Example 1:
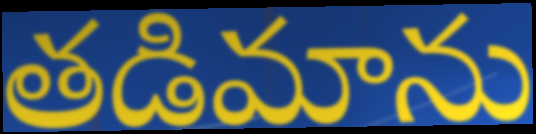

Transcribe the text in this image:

తడిమాను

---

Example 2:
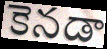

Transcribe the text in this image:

కెనడా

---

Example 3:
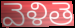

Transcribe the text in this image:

వెళితె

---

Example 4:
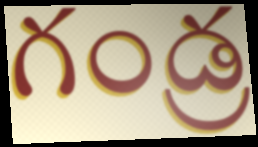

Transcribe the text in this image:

గండ్ర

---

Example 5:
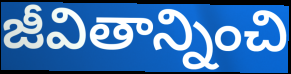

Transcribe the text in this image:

జీవితాన్నించి